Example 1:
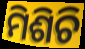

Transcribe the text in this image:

ମିଶିଚି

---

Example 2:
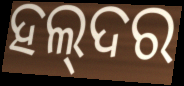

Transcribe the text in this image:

ହଲ୍‌ଦର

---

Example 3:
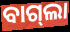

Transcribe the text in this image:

ବାଗ୍‌ଲା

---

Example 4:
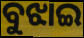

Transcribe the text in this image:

ବୁଝାଇ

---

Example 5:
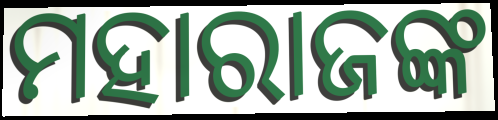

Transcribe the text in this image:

ମହାରାଜଙ୍କ